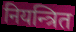
नियन्त्रित